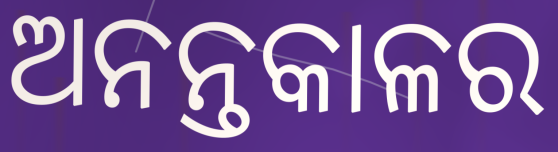
ଅନନ୍ତକାଳର